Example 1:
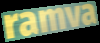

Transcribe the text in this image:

ramva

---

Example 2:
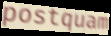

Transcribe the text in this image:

postquam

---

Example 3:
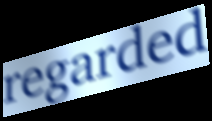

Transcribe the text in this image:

regarded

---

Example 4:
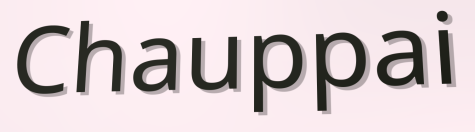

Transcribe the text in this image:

Chauppai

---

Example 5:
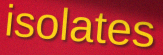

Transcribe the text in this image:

isolates